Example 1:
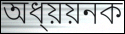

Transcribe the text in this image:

অধ্য়য়নক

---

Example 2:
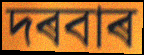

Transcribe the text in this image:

দৰবাৰ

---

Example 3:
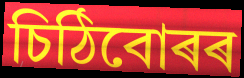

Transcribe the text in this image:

চিঠিবোৰৰ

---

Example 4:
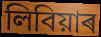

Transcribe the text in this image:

লিবিয়াৰ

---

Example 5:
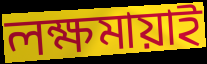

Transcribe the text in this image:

লক্ষমায়াই